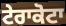
ਟੇਰਾਕੋਟਾ